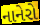
નાનેરો